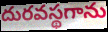
దురవస్థగాను